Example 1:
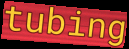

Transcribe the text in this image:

tubing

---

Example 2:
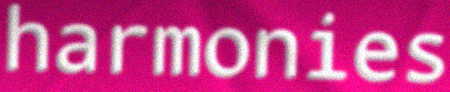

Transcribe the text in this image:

harmonies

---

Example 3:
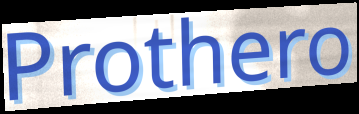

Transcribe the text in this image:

Prothero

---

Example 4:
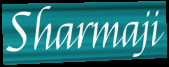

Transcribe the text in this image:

Sharmaji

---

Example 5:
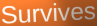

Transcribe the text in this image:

Survives